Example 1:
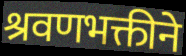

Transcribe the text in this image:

श्रवणभक्तीने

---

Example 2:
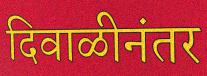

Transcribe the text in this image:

दिवाळीनंतर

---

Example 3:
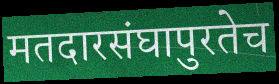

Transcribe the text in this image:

मतदारसंघापुरतेच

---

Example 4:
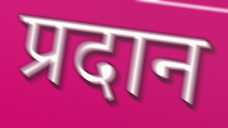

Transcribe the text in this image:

प्रदान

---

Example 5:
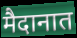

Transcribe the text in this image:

मैदानात